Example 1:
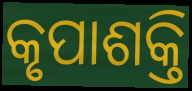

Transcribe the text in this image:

କୃପାଶକ୍ତି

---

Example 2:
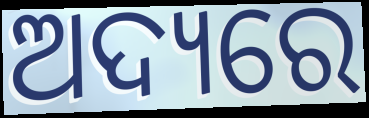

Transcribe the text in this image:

ଅଦ୍ୟରେ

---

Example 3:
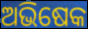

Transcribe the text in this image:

ଅଭିଷେକ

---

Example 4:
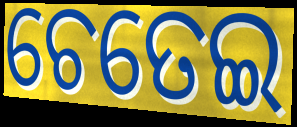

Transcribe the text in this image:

ଚେତେଇ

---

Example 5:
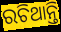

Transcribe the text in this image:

ରଚିଥାନ୍ତି